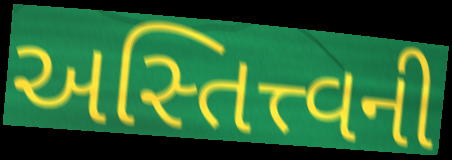
અસ્તિત્ત્વની